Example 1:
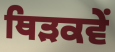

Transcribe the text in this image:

ਥਿੜਕਵੇਂ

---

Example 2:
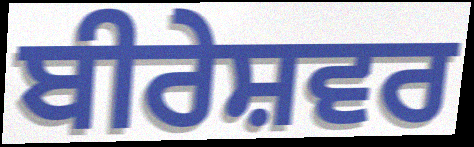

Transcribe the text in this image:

ਬੀਰੇਸ਼ਵਰ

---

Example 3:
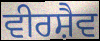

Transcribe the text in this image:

ਵੀਰਸ਼ੈਵ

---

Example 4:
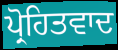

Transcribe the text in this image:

ਪ੍ਰੋਹਿਤਵਾਦ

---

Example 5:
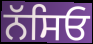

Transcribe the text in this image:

ਨੱਸਿਓ